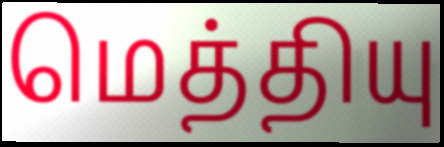
மெத்தியு